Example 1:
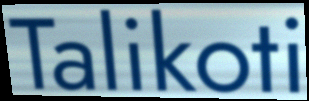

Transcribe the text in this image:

Talikoti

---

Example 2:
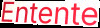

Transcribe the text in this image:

Entente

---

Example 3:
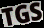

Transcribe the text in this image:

TGS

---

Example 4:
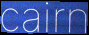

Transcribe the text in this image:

cairn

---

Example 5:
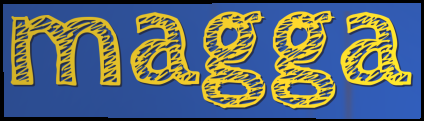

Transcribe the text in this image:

magga